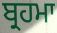
ਬ੍ਰਹਮਾ